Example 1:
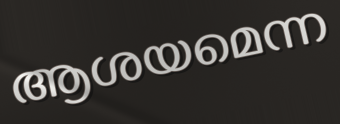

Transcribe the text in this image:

ആശയമെന്ന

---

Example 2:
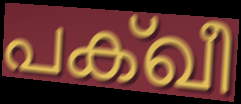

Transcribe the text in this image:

പക്ഖീ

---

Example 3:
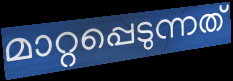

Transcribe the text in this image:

മാറ്റപ്പെടുന്നത്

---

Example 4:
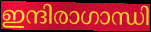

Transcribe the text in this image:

ഇന്ദിരാഗാന്ധി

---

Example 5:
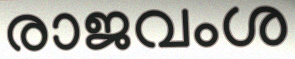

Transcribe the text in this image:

രാജവംശ